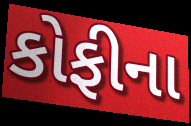
કોફીના